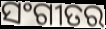
ସଂଗୀତର